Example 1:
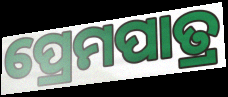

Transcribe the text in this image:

ପ୍ରେମପାତ୍ର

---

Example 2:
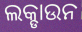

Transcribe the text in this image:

ଲକ୍ଡାଉନ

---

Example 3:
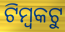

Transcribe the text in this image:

ଟିମ୍ବକଟୁ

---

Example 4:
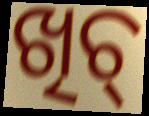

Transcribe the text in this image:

ଖିଚ୍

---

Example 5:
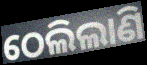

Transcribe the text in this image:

ଠେଲିଲାଣି